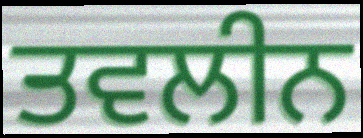
ਤਵਲੀਨ